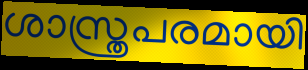
ശാസ്ത്രപരമായി